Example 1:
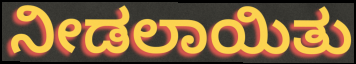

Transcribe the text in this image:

ನೀಡಲಾಯಿತು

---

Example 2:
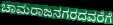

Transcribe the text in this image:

ಚಾಮರಾಜನಗರದವರೆಗೆ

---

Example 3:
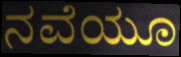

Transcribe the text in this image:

ನವೆಯೂ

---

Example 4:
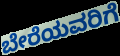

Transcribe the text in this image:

ಬೇರೆಯವರಿಗೆ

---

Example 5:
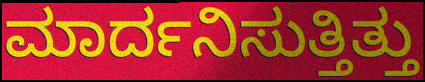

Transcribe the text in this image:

ಮಾರ್ದನಿಸುತ್ತಿತ್ತು